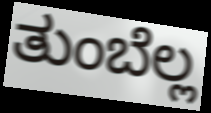
ತುಂಬೆಲ್ಲ